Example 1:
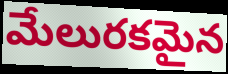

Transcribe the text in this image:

మేలురకమైన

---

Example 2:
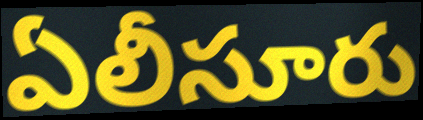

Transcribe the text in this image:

ఏలీసూరు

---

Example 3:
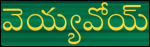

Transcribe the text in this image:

వెయ్యవోయ్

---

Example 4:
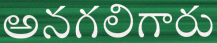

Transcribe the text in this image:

అనగలిగారు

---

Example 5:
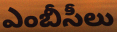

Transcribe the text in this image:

ఎంబీసీలు